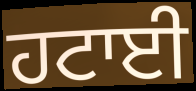
ਹਟਾਈ